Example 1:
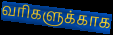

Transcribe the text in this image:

வரிகளுக்காக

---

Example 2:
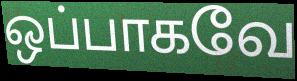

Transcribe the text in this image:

ஒப்பாகவே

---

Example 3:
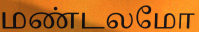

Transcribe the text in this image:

மண்டலமோ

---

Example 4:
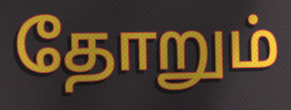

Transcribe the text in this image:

தோறும்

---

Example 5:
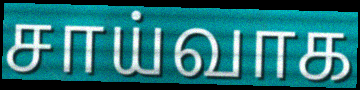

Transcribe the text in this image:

சாய்வாக